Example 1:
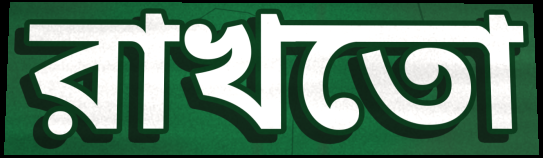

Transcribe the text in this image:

রাখতো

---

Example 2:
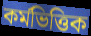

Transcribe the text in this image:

কর্মভিত্তিক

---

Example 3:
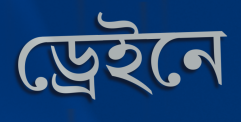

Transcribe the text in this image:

ড্রেইনে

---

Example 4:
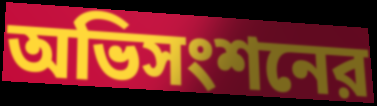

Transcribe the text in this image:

অভিসংশনের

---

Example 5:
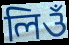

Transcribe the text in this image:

লিওঁ